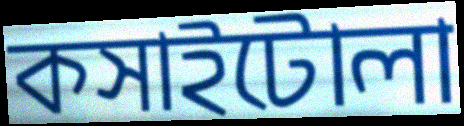
কসাইটোলা